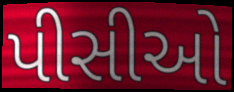
પીસીઓ